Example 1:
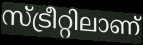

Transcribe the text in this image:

സ്ട്രീറ്റിലാണ്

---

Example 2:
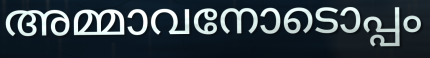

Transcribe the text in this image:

അമ്മാവനോടൊപ്പം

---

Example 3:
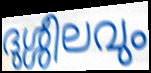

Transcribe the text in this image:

ദുശ്ശീലവും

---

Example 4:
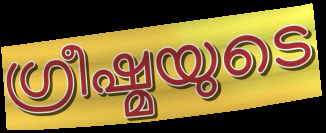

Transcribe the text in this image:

ഗ്രീഷ്മയുടെ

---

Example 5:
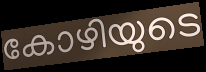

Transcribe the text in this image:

കോഴിയുടെ